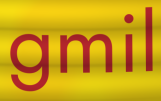
gmil